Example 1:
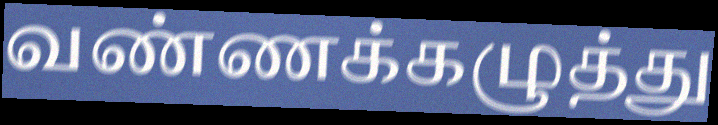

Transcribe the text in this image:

வண்ணக்கழுத்து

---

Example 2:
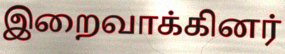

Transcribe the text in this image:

இறைவாக்கினர்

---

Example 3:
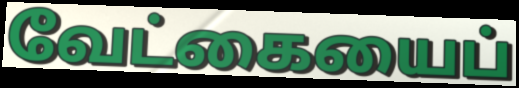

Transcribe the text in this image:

வேட்கையைப்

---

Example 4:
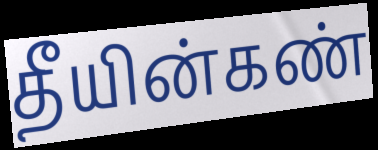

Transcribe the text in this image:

தீயின்கண்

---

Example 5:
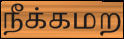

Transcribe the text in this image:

நீக்கமற